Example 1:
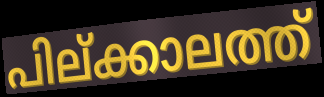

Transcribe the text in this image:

പില്ക്കാലത്ത്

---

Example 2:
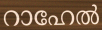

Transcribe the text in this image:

റാഹേൽ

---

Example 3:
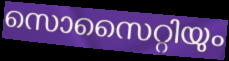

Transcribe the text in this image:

സൊസൈറ്റിയും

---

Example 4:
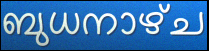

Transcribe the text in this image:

ബുധനാഴ്‌ച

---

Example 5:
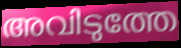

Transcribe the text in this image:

അവിടുത്തേ